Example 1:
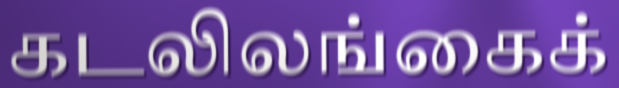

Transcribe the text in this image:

கடலிலங்கைக்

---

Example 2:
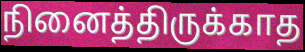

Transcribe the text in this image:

நினைத்திருக்காத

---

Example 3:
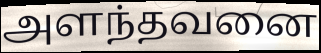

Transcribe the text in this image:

அளந்தவனை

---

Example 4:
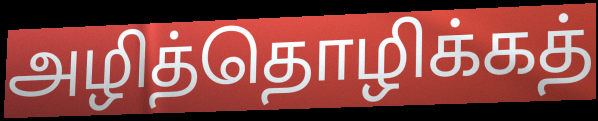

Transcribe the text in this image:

அழித்தொழிக்கத்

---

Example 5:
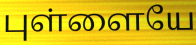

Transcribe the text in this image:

புள்ளையே